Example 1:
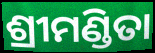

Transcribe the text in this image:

ଶ୍ରୀମଣ୍ଡିତା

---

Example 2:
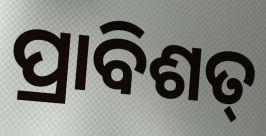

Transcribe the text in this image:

ପ୍ରାବିଶତ୍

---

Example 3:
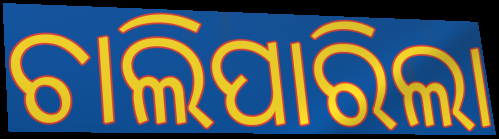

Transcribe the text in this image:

ଚାଲିପାରିଲା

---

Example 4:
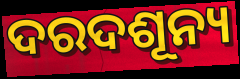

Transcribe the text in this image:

ଦରଦଶୂନ୍ୟ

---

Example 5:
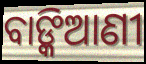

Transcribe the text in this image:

ବାଙ୍କିଆଣୀ